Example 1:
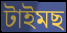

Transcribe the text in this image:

টাইমছ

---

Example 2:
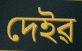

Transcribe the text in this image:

দেইৱ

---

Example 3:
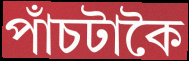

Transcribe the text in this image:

পাঁচটাকৈ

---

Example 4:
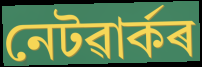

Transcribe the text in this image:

নেটৱাৰ্কৰ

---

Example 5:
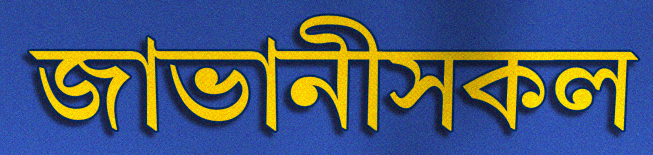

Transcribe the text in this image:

জাভানীসকল